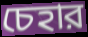
চেহার